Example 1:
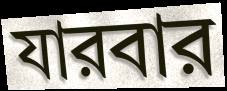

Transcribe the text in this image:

যারবার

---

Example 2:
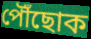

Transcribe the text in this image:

পৌঁছোক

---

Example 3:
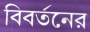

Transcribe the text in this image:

বিবর্তনের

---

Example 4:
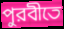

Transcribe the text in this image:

পুরবীতে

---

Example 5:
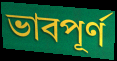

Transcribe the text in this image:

ভাবপূর্ণ